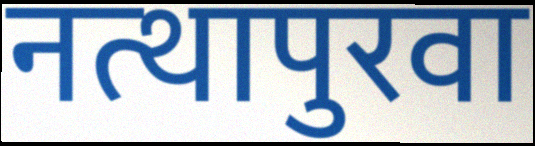
नत्थापुरवा